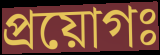
প্রয়োগঃ